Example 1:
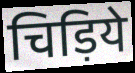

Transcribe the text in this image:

चिड़िये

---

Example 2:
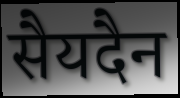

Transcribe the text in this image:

सैयदैन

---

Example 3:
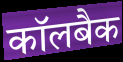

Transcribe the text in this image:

कॉलबैक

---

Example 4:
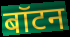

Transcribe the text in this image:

बॉटन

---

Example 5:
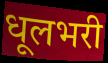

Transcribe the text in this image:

धूलभरी